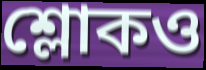
শ্লোকও